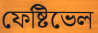
ফেষ্টিভেল